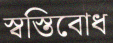
স্বস্তিবোধ